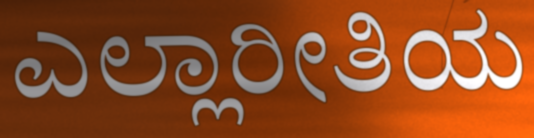
ಎಲ್ಲಾರೀತಿಯ